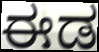
ಈಡ